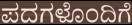
ಪದಗಳೊಂದಿಗೆ